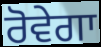
ਰੋਵੇਗਾ